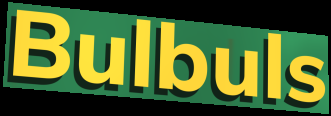
Bulbuls